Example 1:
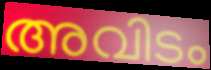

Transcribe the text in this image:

അവിടം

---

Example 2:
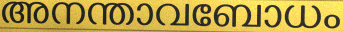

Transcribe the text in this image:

അനന്താവബോധം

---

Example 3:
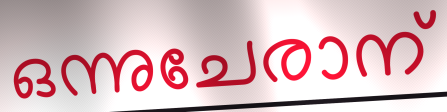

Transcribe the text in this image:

ഒന്നുചേരാന്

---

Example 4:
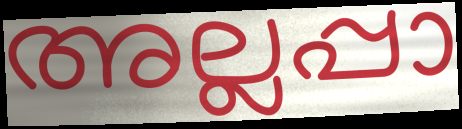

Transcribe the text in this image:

അല്ലപ്പാ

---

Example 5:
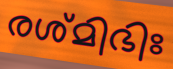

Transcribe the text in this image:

രശ്മിഭിഃ